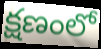
క్షణంలో